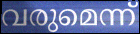
വരുമെന്ന്